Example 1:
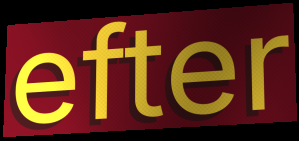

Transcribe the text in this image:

efter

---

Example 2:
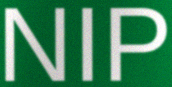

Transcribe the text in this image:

NIP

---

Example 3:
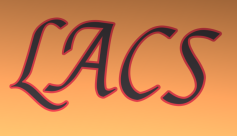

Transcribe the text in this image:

LACS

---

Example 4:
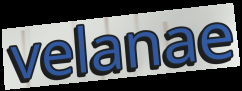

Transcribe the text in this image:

velanae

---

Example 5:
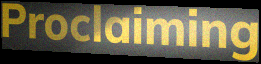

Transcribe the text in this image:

Proclaiming